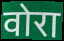
वोरा